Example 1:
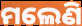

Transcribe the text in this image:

ମଲେଣି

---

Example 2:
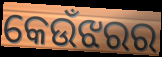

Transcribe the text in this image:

କେଉଁଝରର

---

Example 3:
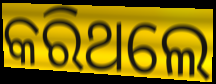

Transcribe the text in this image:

କରିଥଲେ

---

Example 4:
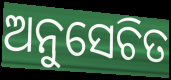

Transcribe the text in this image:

ଅନୁସେଚିତ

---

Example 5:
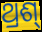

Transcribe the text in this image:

ଥ୍ରଶ୍